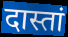
दास्तां